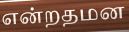
என்றதமன